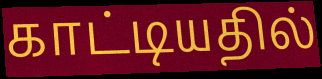
காட்டியதில்